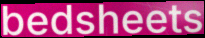
bedsheets